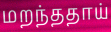
மறந்ததாய்